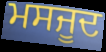
ਮਸਜੂਦ